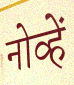
नोव्हें